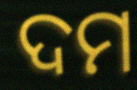
ଦମ